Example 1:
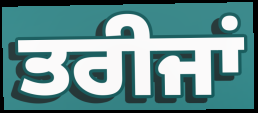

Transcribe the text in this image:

ਤਰੀਜਾਂ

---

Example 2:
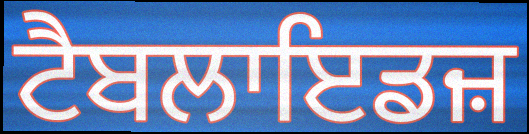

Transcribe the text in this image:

ਟੈਬਲਾਇਡਜ਼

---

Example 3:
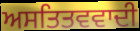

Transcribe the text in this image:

ਅਸਤਿਤਵਵਾਦੀ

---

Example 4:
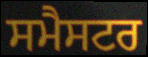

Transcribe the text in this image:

ਸਮੈਸਟਰ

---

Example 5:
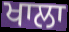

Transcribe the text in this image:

ਖਾਲਾ